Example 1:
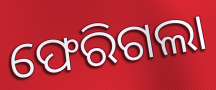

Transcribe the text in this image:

ଫେରିଗଲା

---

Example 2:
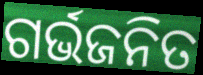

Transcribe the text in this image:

ଗର୍ଭଜନିତ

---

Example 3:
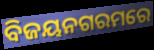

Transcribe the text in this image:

ବିଜୟନଗରମରେ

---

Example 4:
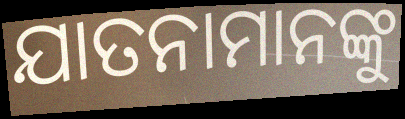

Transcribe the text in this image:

ଯାତନାମାନଙ୍କୁ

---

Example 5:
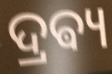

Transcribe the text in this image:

ଦ୍ରଵ୍ୟ